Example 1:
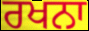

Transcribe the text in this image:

ਰਖਨਾ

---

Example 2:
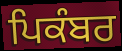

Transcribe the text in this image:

ਪਿਕੰਬਰ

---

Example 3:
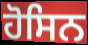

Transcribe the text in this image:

ਹੋਸਿਨ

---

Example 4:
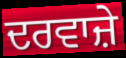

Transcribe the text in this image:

ਦਰਵਾਜ਼ੇ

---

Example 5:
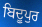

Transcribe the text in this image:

ਬਿਦੂਪੁਰ